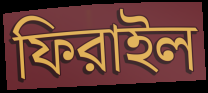
ফিরাইল